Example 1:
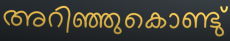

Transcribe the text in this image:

അറിഞ്ഞുകൊണ്ടു്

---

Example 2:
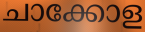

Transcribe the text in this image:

ചാക്കോള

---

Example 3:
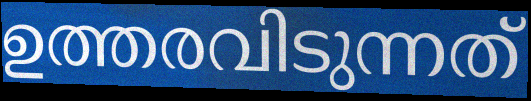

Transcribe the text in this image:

ഉത്തരവിടുന്നത്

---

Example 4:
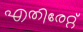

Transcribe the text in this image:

എതിരേറ്റ്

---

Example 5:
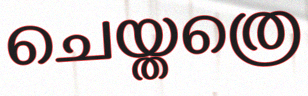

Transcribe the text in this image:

ചെയ്തത്രെ